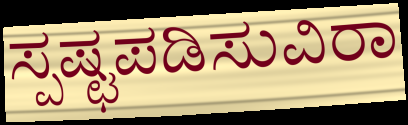
ಸ್ಪಷ್ಟಪಡಿಸುವಿರಾ